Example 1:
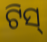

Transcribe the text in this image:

ଟିସ୍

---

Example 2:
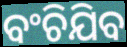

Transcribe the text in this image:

ବଂଚିଯିବ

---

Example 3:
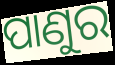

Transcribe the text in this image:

ପାଣୁର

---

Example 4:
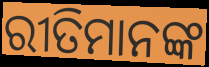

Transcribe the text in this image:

ରୀତିମାନଙ୍କ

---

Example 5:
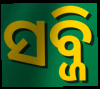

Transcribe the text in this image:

ସବ୍ଜି